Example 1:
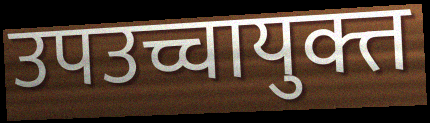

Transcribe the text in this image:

उपउच्चायुक्त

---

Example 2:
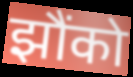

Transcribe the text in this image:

झौंको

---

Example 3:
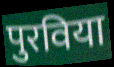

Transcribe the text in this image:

पुरविया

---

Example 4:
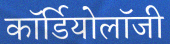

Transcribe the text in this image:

कॉर्डियोलॉजी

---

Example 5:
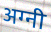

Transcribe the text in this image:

अग्नी